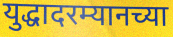
युद्धादरम्यानच्या